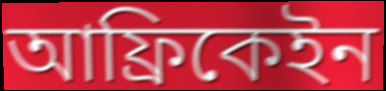
আফ্রিকেইন